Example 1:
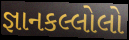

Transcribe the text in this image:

જ્ઞાનકલ્લોલો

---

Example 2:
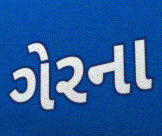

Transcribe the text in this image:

ગેરના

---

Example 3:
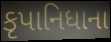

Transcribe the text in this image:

કૃપાનિધાના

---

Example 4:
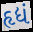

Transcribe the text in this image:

હૃદ્યં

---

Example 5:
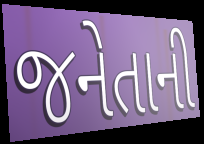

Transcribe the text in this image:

જનેતાની